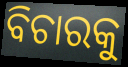
ବିଚାରକୁ